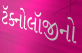
ટૅક્નોલૉજીનો